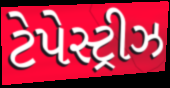
ટેપેસ્ટ્રીઝ